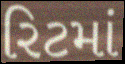
રિટમાં